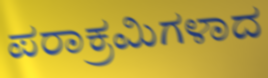
ಪರಾಕ್ರಮಿಗಳಾದ